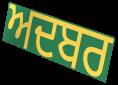
ਅਦਬਰ